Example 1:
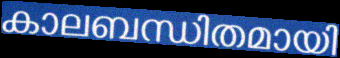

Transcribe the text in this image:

കാലബന്ധിതമായി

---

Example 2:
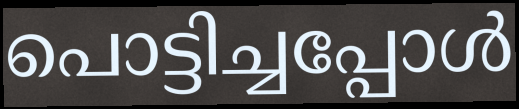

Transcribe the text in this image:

പൊട്ടിച്ചപ്പോൾ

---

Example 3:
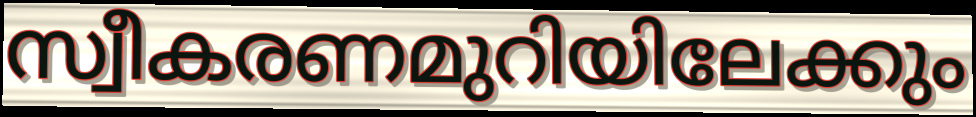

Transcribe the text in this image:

സ്വീകരണമുറിയിലേക്കും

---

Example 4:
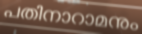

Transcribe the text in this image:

പതിനാറാമനും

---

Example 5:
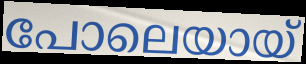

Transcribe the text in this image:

പോലെയായ്